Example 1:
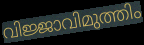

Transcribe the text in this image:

വിജ്ജാവിമുത്തിം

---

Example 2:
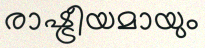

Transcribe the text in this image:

രാഷ്ട്രീയമായും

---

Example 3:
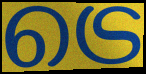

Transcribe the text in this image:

ട്രെ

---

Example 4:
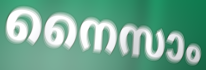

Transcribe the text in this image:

നൈസാം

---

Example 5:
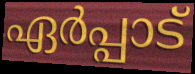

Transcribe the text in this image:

ഏർപ്പാട്